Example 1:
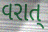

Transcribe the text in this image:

વરાત્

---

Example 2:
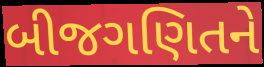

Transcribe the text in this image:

બીજગણિતને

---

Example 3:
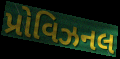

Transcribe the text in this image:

પ્રોવિઝનલ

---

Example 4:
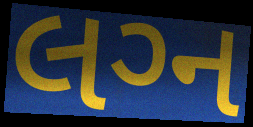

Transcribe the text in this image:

લગ્‍ન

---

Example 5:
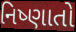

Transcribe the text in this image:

નિષ્ણાતો